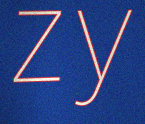
zy